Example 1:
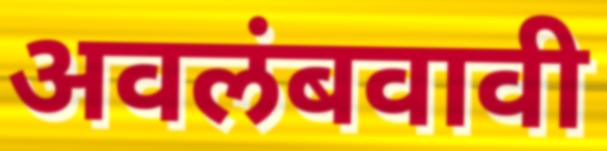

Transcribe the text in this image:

अवलंबवावी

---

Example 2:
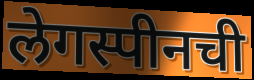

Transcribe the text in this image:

लेगस्पीनची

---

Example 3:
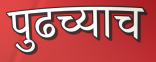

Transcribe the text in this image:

पुढच्याच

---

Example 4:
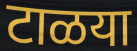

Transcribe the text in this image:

टाळया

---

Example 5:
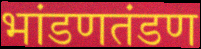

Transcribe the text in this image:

भांडणतंडण